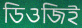
ডিওজিই